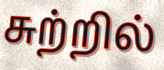
சுற்றில்